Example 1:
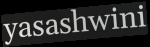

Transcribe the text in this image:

yasashwini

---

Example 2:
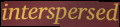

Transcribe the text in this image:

interspersed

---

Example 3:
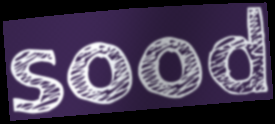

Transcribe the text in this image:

sood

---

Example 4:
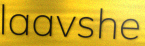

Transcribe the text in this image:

laavshe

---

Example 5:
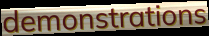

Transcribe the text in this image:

demonstrations